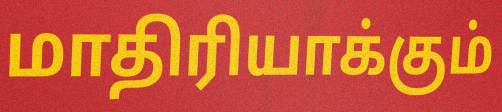
மாதிரியாக்கும்